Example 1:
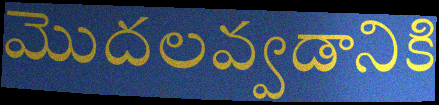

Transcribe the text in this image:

మొదలవ్వడానికి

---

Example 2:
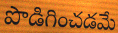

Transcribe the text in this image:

పొడిగించడమే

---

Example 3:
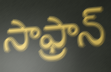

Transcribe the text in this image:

సాఫ్రాన్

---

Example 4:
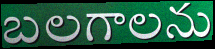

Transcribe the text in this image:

బలగాలను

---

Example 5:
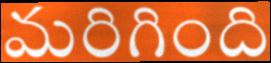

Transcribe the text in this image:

మరిగింది